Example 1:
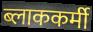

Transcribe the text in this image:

ब्लाककर्मी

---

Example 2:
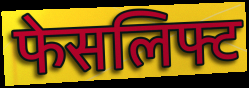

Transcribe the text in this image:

फेसलिफ्ट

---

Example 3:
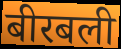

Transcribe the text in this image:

बीरबली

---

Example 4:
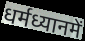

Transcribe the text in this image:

धर्मध्यानमें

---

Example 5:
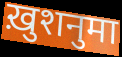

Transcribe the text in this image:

ख़ुशनुमा